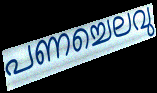
പണച്ചെലവു